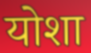
योशा